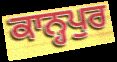
ਕਾਨ੍ਹਪੁਰ